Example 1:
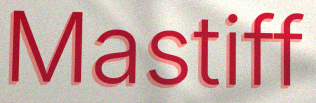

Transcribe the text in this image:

Mastiff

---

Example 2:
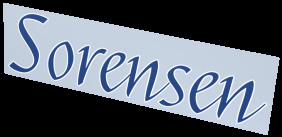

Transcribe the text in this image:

Sorensen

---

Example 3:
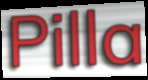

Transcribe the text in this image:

Pilla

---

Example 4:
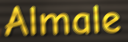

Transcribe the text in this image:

Almale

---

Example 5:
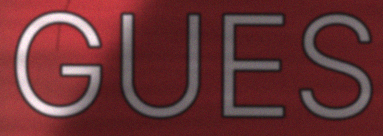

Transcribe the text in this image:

GUES